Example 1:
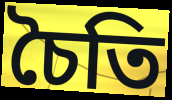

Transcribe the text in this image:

চৈতি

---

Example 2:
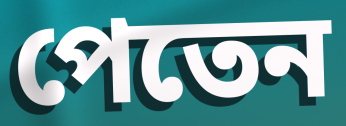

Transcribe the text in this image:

পেতেন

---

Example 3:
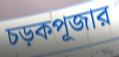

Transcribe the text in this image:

চড়কপূজার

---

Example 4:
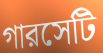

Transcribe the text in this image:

গারসেটি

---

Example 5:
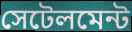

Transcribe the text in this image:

সেটেলমেন্ট